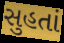
સુહતાં